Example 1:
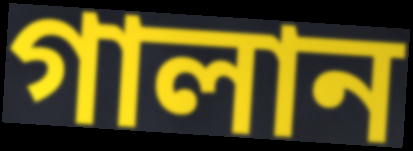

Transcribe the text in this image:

গালান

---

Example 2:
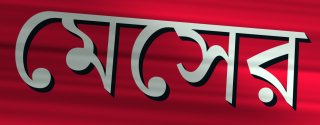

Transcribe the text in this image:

মেসের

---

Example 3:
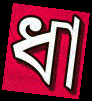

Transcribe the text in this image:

ধা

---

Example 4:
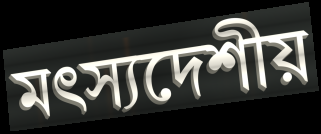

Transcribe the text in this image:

মৎস্যদেশীয়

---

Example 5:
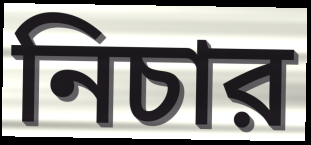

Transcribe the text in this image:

নিচার